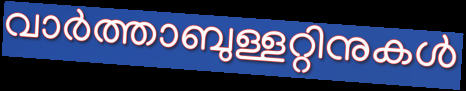
വാർത്താബുള്ളറ്റിനുകൾ